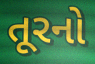
તૂરનો